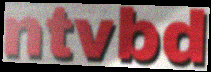
ntvbd